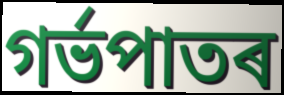
গৰ্ভপাতৰ